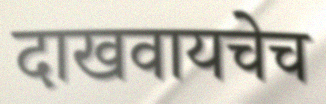
दाखवायचेच